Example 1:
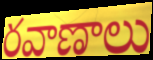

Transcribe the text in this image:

రవాణాలు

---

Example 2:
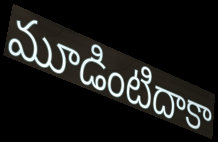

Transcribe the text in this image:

మూడింటిదాకా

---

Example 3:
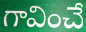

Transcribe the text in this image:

గావించే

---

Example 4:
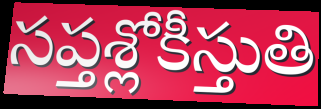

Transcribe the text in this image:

సప్తశ్లోకీస్తుతి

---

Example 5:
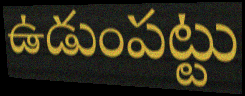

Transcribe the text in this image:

ఉడుంపట్టు